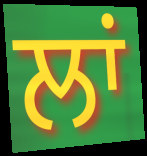
ਲਾਂ